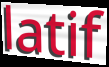
latif